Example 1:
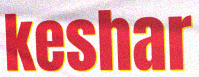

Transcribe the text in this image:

keshar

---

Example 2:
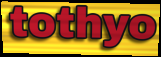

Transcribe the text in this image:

tothyo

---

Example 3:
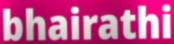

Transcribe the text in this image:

bhairathi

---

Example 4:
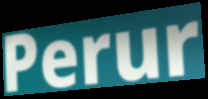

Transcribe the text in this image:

Perur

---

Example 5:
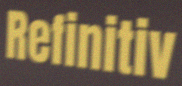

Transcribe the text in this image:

Refinitiv